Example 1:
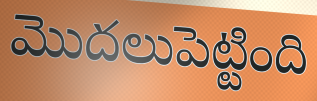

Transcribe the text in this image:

మొదలుపెట్టింది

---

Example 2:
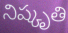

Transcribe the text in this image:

నిష్కృతి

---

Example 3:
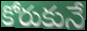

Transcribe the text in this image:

కోరుకునే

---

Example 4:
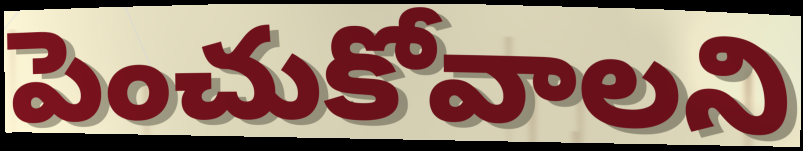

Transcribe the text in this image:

పెంచుకోవాలని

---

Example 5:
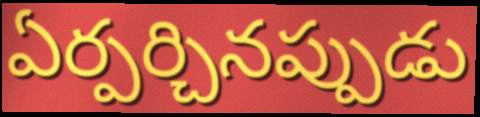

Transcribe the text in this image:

ఏర్పర్చినప్పుడు